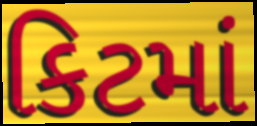
કિટમાં